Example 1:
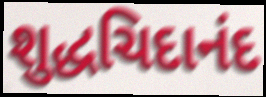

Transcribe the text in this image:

શુદ્ધચિદાનંદ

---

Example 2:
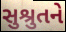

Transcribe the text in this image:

સુશ્રુતને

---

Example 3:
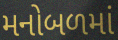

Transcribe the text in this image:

મનોબળમાં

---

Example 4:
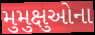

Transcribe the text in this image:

મુમુક્ષુઓના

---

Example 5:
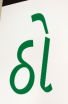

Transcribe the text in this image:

ઠો